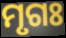
ମୃଗଃ